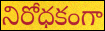
నిరోధకంగా